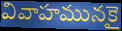
వివాహమునకై